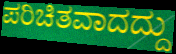
ಪರಿಚಿತವಾದದ್ದು